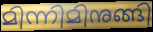
മിന്നിമിനുങ്ങി